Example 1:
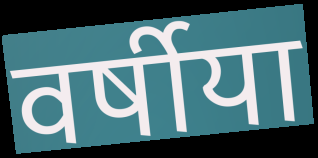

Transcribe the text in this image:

वर्षीया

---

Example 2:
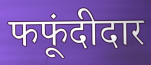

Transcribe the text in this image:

फफूंदीदार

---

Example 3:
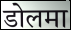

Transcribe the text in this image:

डोलमा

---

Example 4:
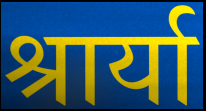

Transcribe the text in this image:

श्रार्या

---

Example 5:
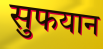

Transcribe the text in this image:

सुफयान